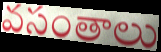
వసంతాలు